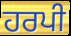
ਹਰਪੀ